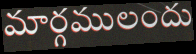
మార్గములందు